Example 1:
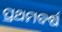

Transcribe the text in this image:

ପ୍ରଥମବର୍ଷ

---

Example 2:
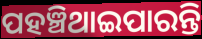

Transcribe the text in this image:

ପହଞ୍ଚିଥାଇପାରନ୍ତି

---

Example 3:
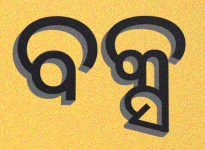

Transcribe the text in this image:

ବକ୍ସ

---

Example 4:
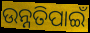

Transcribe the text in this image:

ଉନ୍ନତିପାଇଁ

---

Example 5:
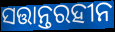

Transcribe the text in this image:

ସତ୍ତାନ୍ତରହୀନ